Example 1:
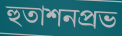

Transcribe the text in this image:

হুতাশনপ্রভ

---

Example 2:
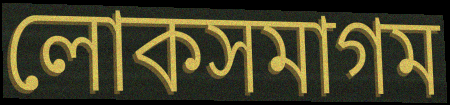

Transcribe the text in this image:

লোকসমাগম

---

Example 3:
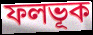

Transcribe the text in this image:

ফলভূক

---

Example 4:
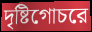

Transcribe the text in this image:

দৃষ্টিগোচরে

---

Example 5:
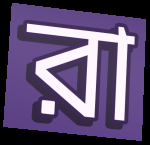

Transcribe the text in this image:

রা